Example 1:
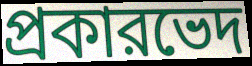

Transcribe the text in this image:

প্রকারভেদ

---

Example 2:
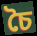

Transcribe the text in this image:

চৈ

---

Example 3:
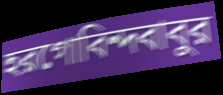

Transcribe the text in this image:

হরগোবিন্দবাবুর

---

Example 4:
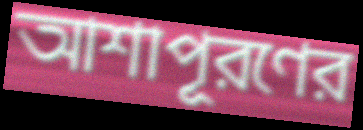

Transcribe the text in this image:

আশাপূরণের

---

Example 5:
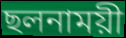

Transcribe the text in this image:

ছলনাময়ী